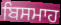
ਬਿਸਮਾਹ